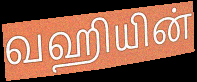
வஹியின்